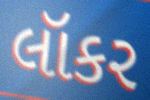
લૉકર